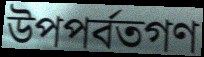
উপপর্বতগণ